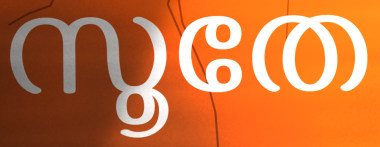
സൂതേ